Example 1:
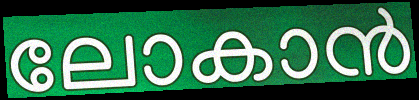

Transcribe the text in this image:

ലോകാൻ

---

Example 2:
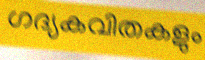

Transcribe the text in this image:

ഗദ്യകവിതകളും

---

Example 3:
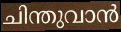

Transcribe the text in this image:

ചിന്തുവാൻ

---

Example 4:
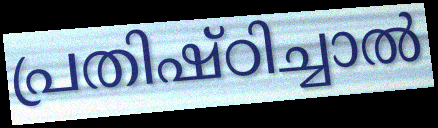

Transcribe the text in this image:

പ്രതിഷ്ഠിച്ചാൽ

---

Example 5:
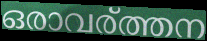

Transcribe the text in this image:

ഒരാവര്ത്തന